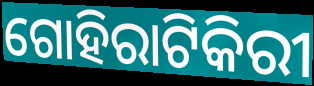
ଗୋହିରାଟିକିରୀ